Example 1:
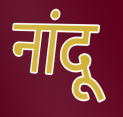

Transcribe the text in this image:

नांदू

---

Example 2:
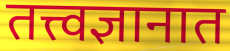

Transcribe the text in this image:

तत्त्वज्ञानात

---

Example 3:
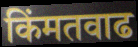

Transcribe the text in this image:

किंमतवाढ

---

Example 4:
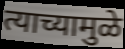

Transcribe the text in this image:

त्याच्यामुळे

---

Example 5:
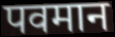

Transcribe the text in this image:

पवमान